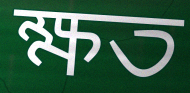
ক্ষত